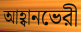
আহ্বানভেরী